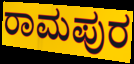
ರಾಮಪುರ